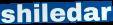
shiledar